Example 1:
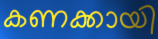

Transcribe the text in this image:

കണക്കായി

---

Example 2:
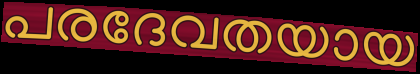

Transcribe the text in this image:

പരദേവതയായ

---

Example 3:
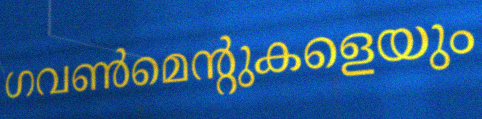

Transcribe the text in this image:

ഗവൺമെന്റുകളെയും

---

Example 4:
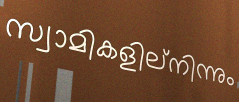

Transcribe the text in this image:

സ്വാമികളില്നിന്നും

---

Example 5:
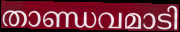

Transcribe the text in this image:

താണ്ഡവമാടി